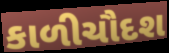
કાળીચૌદશ